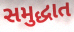
સમુદ્ધાત